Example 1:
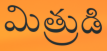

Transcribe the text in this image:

మిత్రుడి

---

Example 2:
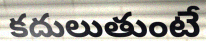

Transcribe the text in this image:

కదులుతుంటే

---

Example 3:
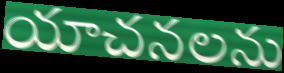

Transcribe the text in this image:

యాచనలను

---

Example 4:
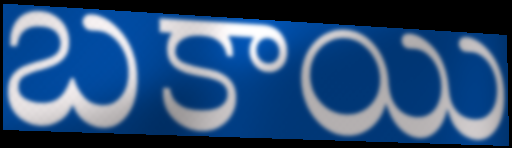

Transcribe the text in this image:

బకాయి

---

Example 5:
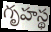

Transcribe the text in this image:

గృహస్థ